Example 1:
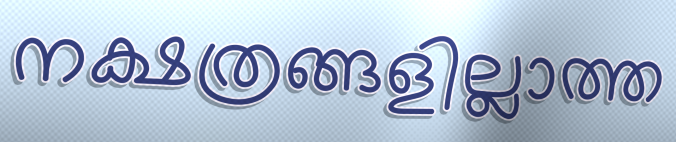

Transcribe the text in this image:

നക്ഷത്രങ്ങളില്ലാത്ത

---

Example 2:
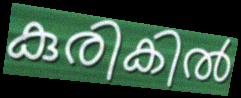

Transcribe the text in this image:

കുരികിൽ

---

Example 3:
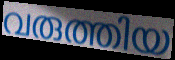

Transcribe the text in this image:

വരുത്തിയ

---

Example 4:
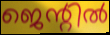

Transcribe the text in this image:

ജെന്റിൽ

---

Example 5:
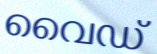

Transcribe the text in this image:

വൈഡ്